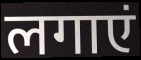
लगाएं